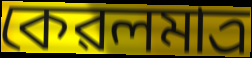
কেৱলমাত্ৰ